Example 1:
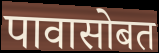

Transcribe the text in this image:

पावासोबत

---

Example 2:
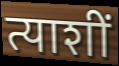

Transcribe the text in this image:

त्याशीं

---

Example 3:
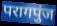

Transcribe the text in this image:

परागपुंज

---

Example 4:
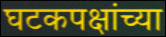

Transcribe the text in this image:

घटकपक्षांच्या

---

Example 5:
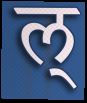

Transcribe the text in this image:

ल्